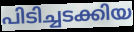
പിടിച്ചടക്കിയ